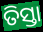
ତିସ୍ତା